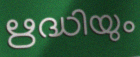
ഋദ്ധിയും